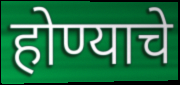
होण्याचे